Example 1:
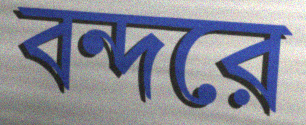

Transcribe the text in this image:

বন্দরে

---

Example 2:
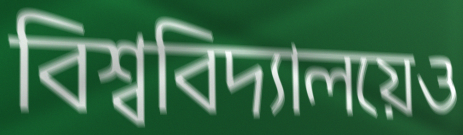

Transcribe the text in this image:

বিশ্ববিদ্যালয়েও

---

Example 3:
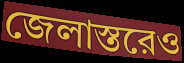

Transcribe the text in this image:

জেলাস্তরেও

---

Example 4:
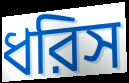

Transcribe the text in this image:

ধরিস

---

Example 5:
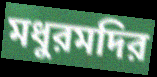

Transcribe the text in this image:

মধুরমদির